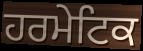
ਹਰਮੇਟਿਕ